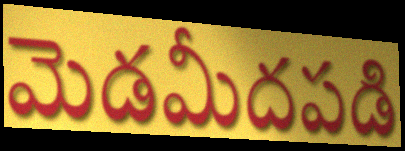
మెడమీదపడి